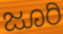
ಜೂರಿ